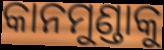
କାନମୁଣ୍ଡାକୁ